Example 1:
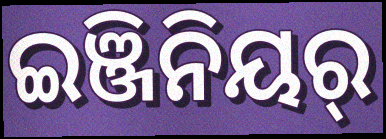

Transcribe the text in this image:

ଇଞ୍ଜିନିୟର୍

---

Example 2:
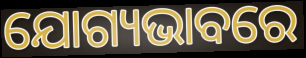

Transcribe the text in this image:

ଯୋଗ୍ୟଭାବରେ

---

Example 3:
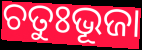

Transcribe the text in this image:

ଚତୁଃଭୂଜା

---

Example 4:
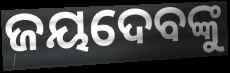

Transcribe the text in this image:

ଜୟଦେବଙ୍କୁ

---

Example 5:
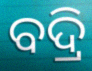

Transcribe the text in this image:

ବଦ୍ରି